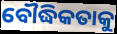
ବୌଦ୍ଧିକତାକୁ